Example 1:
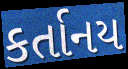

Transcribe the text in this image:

કર્તાનય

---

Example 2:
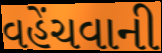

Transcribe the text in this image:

વહેંચવાની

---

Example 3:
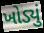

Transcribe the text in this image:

ખોડ્યું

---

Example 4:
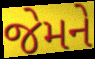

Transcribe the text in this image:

જેમને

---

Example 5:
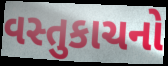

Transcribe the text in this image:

વસ્તુકાચનો